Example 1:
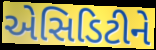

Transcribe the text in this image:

એસિડિટીને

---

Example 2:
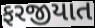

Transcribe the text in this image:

ફરજીયાત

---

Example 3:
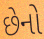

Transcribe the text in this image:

છેનો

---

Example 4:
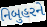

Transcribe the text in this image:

નિબુહરને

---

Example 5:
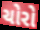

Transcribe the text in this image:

ચોરો